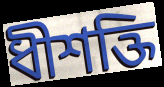
ধীশক্তি